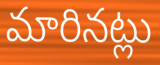
మారినట్లు